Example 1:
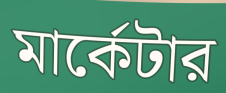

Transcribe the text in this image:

মার্কেটার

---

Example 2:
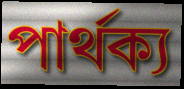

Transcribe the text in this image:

পার্থক্য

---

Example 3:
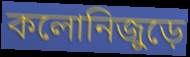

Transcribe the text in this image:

কলোনিজুড়ে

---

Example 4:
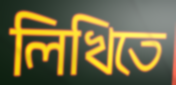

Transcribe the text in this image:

লিখিতে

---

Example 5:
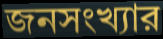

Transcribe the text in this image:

জনসংখ্যার